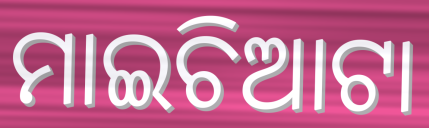
ମାଇଚିଆଟା